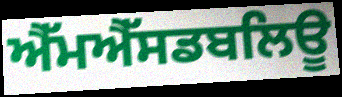
ਐੱਮਐੱਸਡਬਲਿਊ